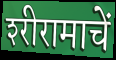
श्रीरामाचें